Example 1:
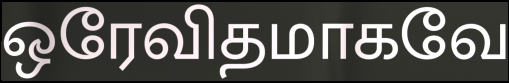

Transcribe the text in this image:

ஒரேவிதமாகவே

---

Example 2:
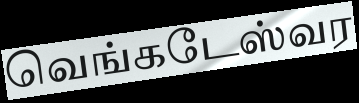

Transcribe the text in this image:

வெங்கடேஸ்வர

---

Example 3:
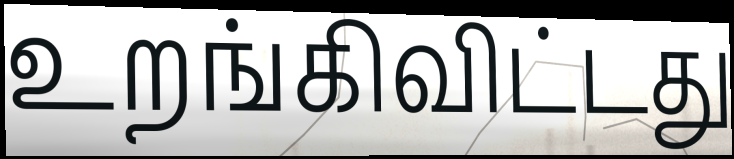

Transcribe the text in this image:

உறங்கிவிட்டது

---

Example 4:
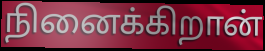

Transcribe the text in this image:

நினைக்கிறான்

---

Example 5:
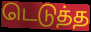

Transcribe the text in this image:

டெடுத்த